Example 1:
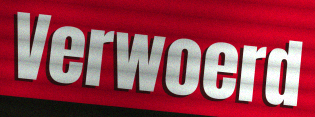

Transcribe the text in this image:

Verwoerd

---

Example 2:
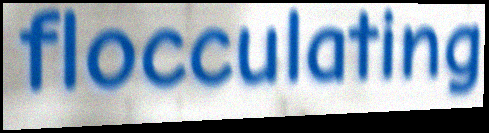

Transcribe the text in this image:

flocculating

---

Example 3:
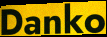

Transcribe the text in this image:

Danko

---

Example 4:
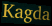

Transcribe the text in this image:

Kagda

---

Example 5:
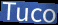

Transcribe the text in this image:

Tuco